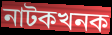
নাটকখনক